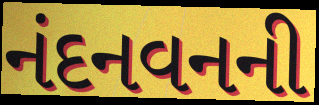
નંદનવનની